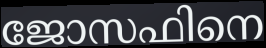
ജോസഫിനെ